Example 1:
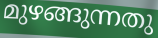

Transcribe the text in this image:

മുഴങ്ങുന്നതു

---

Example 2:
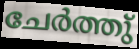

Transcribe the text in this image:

ചേർത്തു്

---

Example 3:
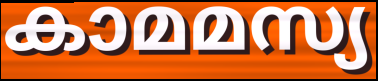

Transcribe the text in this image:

കാമമസ്യ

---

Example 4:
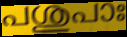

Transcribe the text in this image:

പശുപാഃ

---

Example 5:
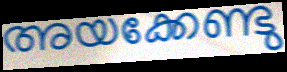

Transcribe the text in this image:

അയക്കേണ്ടു